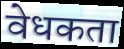
वेधकता